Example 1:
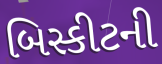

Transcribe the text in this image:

બિસ્કીટની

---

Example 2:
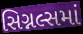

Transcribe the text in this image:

સિગ્નલ્સમાં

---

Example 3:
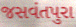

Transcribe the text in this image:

જસવંતપુરા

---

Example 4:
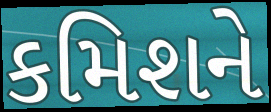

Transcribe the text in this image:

કમિશને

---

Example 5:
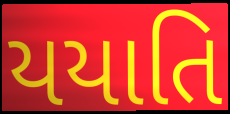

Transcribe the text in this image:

યયાતિ